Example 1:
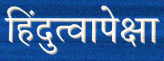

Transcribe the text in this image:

हिंदुत्वापेक्षा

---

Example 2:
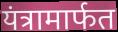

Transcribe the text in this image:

यंत्रामार्फत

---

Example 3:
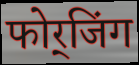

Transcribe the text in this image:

फोर्जिंग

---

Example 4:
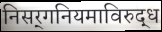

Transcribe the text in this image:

निसर्गनियमाविरुद्ध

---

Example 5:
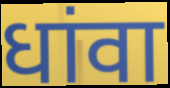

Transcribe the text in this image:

धांवा